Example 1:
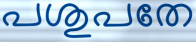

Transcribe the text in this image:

പശുപതേ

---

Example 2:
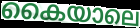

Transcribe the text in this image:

കൈയാലെ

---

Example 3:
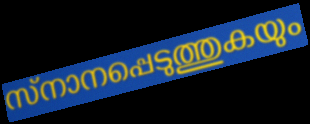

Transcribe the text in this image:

സ്‌നാനപ്പെടുത്തുകയും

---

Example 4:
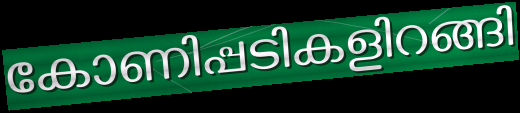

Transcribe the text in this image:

കോണിപ്പടികളിറങ്ങി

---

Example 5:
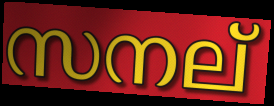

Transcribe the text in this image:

സനല്